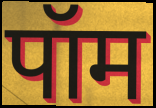
पॉम